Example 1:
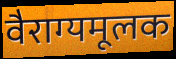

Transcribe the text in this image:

वैराग्यमूलक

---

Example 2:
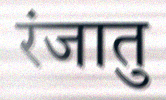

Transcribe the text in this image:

रंजातु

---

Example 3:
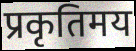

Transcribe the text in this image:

प्रकृतिमय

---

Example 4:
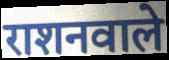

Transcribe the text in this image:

राशनवाले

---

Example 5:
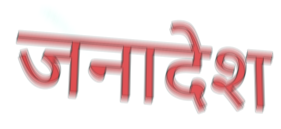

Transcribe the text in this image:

जनादेश